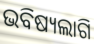
ଭବିଷ୍ୟଲାଗି